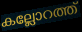
കല്ലോറത്ത്